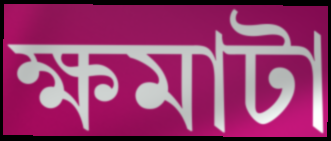
ক্ষমাটা